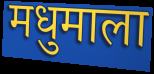
मधुमाला